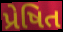
પ્રેષિત